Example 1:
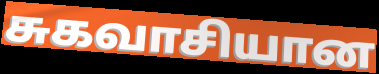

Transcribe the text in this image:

சுகவாசியான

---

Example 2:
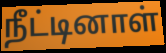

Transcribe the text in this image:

நீட்டினாள்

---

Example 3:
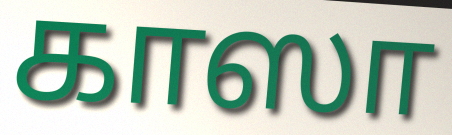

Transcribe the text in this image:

காஸா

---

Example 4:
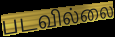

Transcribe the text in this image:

படவில்லை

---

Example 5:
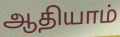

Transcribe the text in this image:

ஆதியாம்